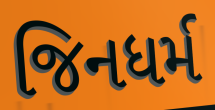
જિનધર્મ